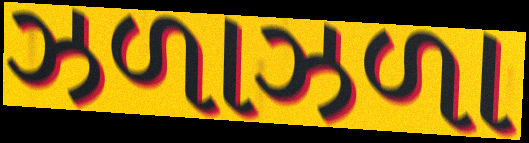
ઝળાઝળા